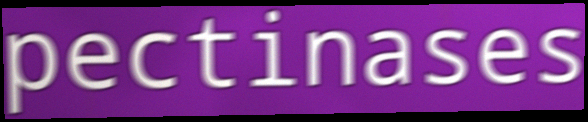
pectinases